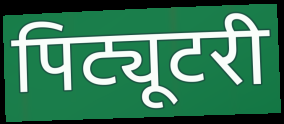
पिट्यूटरी